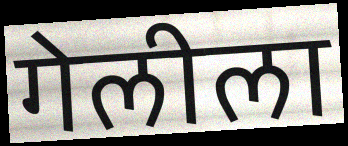
गेलीला